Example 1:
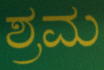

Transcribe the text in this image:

ಶ್ರಮ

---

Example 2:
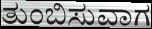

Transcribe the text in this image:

ತುಂಬಿಸುವಾಗ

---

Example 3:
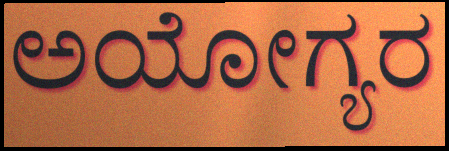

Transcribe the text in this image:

ಅಯೋಗ್ಯರ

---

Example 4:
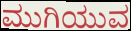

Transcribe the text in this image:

ಮುಗಿಯುವ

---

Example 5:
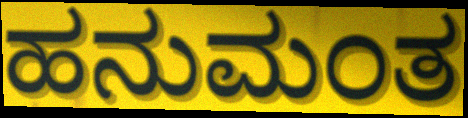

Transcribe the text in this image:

ಹನುಮಂತ